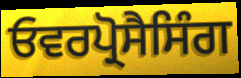
ਓਵਰਪ੍ਰੋਸੈਸਿੰਗ